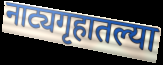
नाट्यगृहातल्या